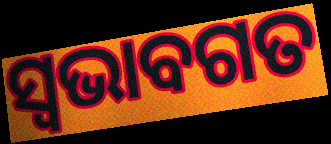
ସ୍ୱଭାବଗତ